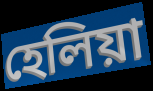
হেলিয়া